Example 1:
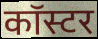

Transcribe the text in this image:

कॉस्टर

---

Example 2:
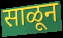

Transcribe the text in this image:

साळून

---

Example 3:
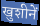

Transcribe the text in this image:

खुशीनें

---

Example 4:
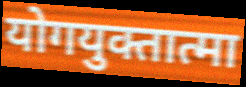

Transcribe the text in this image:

योगयुक्तात्मा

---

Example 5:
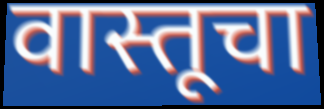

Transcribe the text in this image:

वास्तूचा